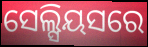
ସେଲ୍ସିୟସରେ